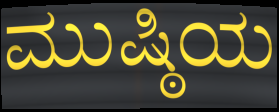
ಮುಷ್ಠಿಯ